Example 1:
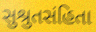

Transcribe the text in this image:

સુશ્રુતસંહિતા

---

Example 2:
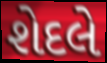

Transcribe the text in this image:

શેદલે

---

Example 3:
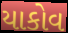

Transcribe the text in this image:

યાકોવ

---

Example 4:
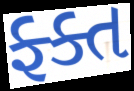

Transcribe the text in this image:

ફ્ક્ત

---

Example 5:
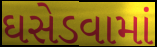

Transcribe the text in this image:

ઘસેડવામાં